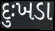
દુઃખડા